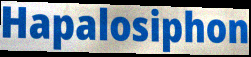
Hapalosiphon